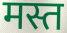
मस्त